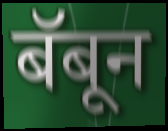
बॅबून